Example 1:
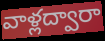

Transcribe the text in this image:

వాళ్లద్వారా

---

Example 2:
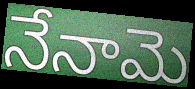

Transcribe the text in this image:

నేనామె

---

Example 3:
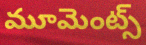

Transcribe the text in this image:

మూమెంట్స్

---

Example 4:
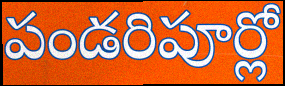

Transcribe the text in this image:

పండరిపూర్లో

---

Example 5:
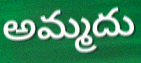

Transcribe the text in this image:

అమ్మదు